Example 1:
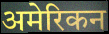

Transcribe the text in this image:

अमेरिकन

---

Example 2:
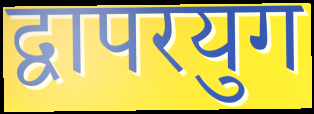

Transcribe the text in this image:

द्वापरयुग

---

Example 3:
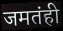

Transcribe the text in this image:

जमतंही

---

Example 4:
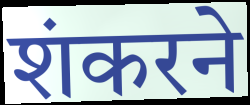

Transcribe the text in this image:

शंकरने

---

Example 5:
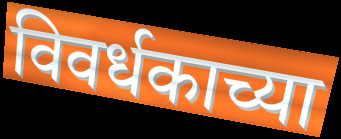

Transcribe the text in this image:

विवर्धकाच्या